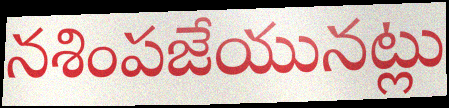
నశింపజేయునట్లు